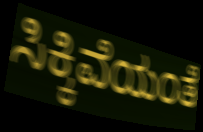
ಸಿಕ್ಕಿವೆಯಂತೆ